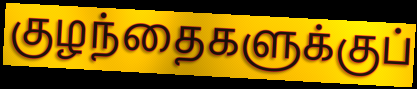
குழந்தைகளுக்குப்